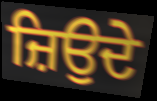
ਜ਼ਿਉਦੇ